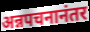
अन्नपचनानंतर